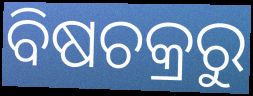
ବିଷଚକ୍ରରୁ